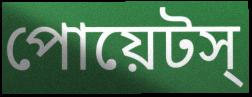
পোয়েটস্